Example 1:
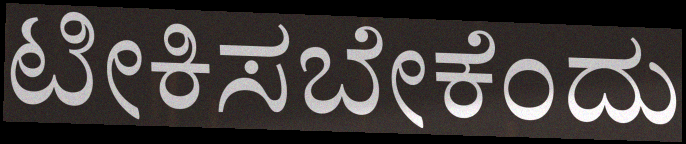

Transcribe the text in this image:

ಟೀಕಿಸಬೇಕೆಂದು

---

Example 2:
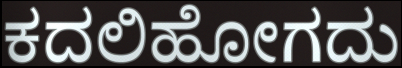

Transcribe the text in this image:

ಕದಲಿಹೋಗದು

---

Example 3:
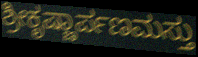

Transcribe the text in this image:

ಶ್ರೀಕೃಷ್ಣಾರ್ಪಣಮಸ್ತು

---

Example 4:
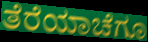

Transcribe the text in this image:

ತೆರೆಯಾಚೆಗೂ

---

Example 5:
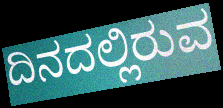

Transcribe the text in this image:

ದಿನದಲ್ಲಿರುವ